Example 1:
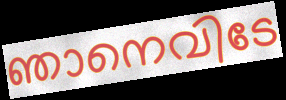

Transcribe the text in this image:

ഞാനെവിടേ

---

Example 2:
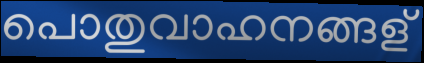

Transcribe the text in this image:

പൊതുവാഹനങ്ങള്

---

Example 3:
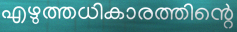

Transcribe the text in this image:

എഴുത്തധികാരത്തിന്റെ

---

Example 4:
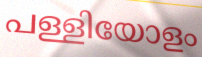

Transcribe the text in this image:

പള്ളിയോളം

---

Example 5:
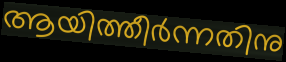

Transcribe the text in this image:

ആയിത്തീർന്നതിനു